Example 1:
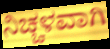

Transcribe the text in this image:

ನಿಚ್ಚಳವಾಗಿ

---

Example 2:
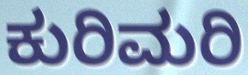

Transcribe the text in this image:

ಕುರಿಮರಿ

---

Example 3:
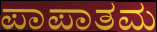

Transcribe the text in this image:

ಪಾಪಾತಮ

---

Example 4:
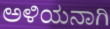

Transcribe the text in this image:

ಅಳಿಯನಾಗಿ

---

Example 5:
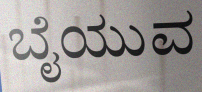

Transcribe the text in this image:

ಬೈಯುವ